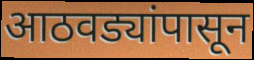
आठवड्यांपासून